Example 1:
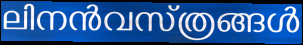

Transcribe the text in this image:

ലിനൻവസ്‌ത്രങ്ങൾ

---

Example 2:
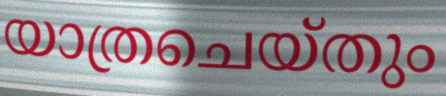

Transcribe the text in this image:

യാത്രചെയ്തും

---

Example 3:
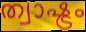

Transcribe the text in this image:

ത്വാഷ്ട്രം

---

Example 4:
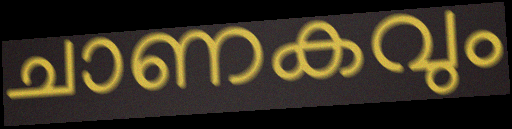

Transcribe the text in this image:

ചാണകവും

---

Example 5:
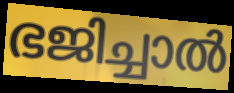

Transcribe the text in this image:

ഭജിച്ചാൽ